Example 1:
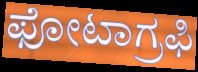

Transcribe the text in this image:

ಫೋಟಾಗ್ರಫಿ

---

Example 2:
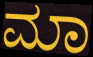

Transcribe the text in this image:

ಮಾ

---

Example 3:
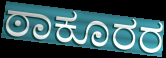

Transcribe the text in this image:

ಠಾಕೂರರ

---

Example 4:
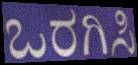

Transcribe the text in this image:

ಒರಗಿಸಿ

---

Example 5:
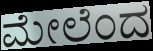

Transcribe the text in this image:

ಮೇಲೆಂದ